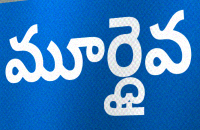
మూర్ధైవ